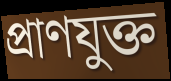
প্রাণযুক্ত